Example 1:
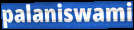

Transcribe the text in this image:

palaniswami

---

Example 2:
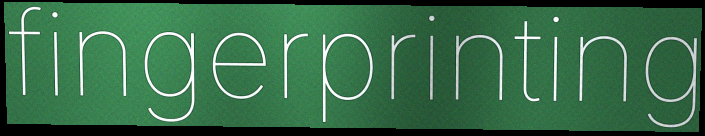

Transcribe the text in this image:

fingerprinting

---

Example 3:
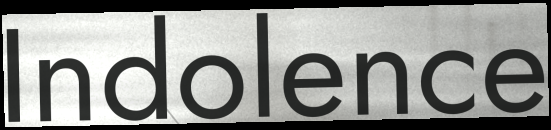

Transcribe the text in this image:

Indolence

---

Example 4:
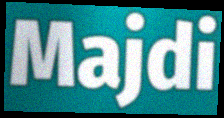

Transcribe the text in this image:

Majdi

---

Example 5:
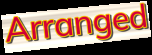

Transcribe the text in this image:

Arranged